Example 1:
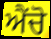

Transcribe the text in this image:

ਐਂਚੋ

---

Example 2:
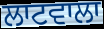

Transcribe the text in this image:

ਲਾਟਵਾਲਾ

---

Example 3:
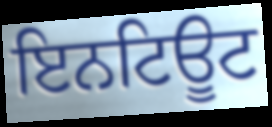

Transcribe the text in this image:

ਇਨਟਿਊਟ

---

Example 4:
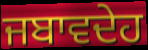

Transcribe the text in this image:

ਜਬਾਵਦੇਹ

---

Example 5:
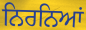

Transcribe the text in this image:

ਨਿਰਨਿਆਂ